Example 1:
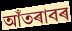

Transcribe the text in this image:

আঁতৰাবৰ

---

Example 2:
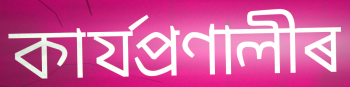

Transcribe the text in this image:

কাৰ্যপ্ৰণালীৰ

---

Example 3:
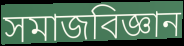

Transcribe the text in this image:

সমাজবিজ্ঞান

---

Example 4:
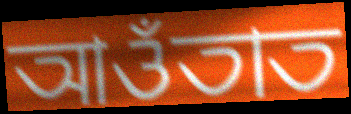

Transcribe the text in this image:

আওঁতাত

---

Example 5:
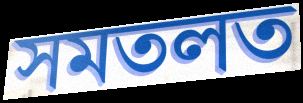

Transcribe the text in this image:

সমতলত